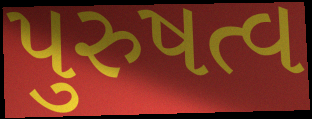
પુરુષત્વ